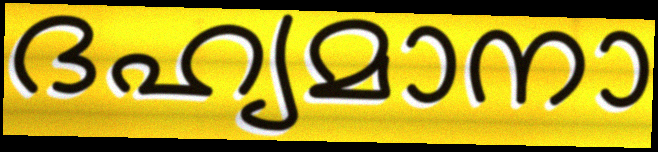
ദഹ്യമാനാ